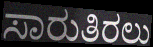
ಸಾರುತಿರಲು